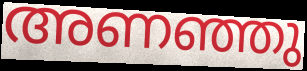
അണഞ്ഞു